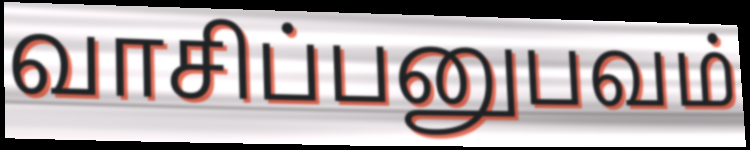
வாசிப்பனுபவம்